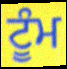
ਟੂੰਮ